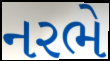
નરભે